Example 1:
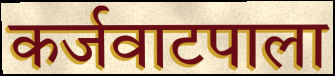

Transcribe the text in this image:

कर्जवाटपाला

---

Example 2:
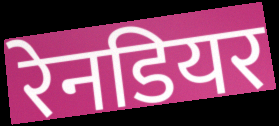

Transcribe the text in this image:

रेनडियर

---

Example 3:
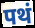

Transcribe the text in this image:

पथं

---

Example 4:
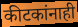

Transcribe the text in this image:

कीटकांनाही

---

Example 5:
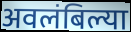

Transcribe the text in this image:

अवलंबिल्या